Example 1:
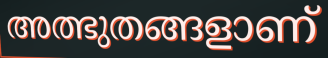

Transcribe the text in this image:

അത്ഭുതങ്ങളാണ്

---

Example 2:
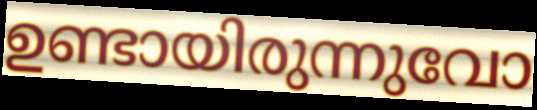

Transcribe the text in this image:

ഉണ്ടായിരുന്നുവോ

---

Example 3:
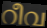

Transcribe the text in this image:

റീവ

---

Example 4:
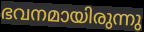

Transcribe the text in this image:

ഭവനമായിരുന്നു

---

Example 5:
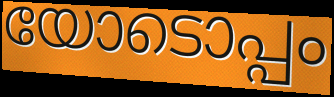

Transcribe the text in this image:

യോടൊപ്പം